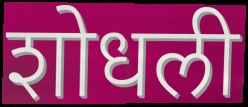
शोधली